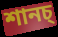
শানচ্